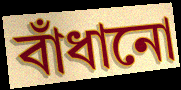
বাঁধানো